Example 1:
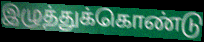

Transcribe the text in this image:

இழுத்துக்கொண்டு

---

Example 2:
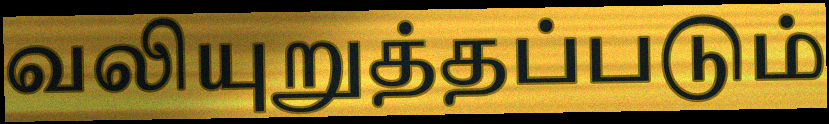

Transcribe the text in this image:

வலியுறுத்தப்படும்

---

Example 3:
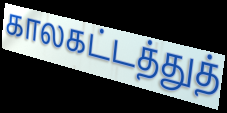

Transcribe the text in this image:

காலகட்டத்துத்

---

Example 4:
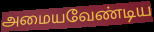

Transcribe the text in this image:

அமையவேண்டிய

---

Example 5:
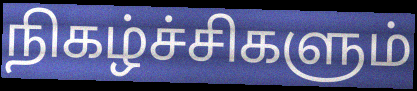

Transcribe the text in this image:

நிகழ்ச்சிகளும்